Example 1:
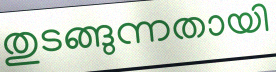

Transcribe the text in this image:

തുടങ്ങുന്നതായി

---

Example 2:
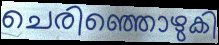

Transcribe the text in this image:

ചെരിഞ്ഞൊഴുകി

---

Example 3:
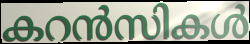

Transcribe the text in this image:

കറൻസികൾ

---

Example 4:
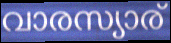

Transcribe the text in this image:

വാരസ്യാര്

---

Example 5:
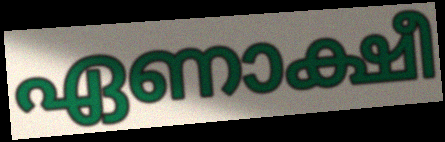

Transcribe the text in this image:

ഏണാക്ഷീ